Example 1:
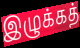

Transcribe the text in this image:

இழுக்கத்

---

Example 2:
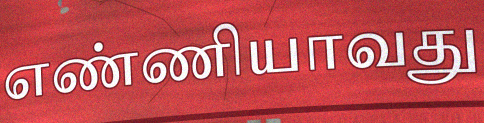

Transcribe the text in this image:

எண்ணியாவது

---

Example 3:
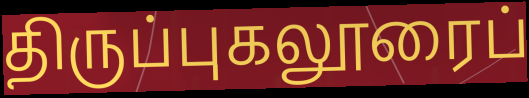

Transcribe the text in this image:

திருப்புகலூரைப்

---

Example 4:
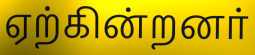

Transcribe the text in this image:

ஏற்கின்றனர்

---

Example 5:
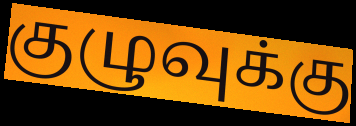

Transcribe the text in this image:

குழுவுக்கு